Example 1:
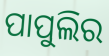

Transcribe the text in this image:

ପାପୁଲିର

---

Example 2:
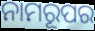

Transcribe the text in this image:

ନାମରୂପର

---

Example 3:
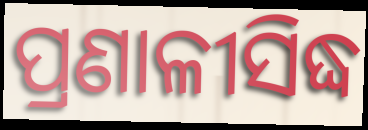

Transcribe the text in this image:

ପ୍ରଣାଳୀସିଦ୍ଧ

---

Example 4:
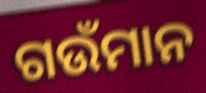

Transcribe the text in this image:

ଗଉଁମାନ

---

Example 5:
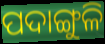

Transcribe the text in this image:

ପଦାଙ୍ଗୁଳି